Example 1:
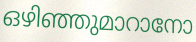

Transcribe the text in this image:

ഒഴിഞ്ഞുമാറാനോ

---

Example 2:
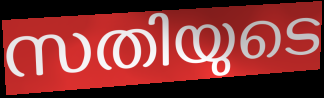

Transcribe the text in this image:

സതിയുടെ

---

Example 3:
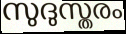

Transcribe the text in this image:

സുദുസ്തരം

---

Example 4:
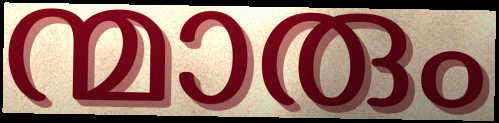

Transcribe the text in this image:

ന്മാരും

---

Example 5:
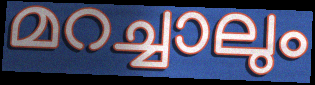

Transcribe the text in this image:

മറച്ചാലും